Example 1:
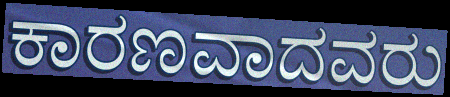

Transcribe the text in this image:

ಕಾರಣವಾದವರು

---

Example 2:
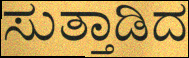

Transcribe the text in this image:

ಸುತ್ತಾಡಿದ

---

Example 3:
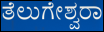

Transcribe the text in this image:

ತೆಲುಗೇಶ್ವರಾ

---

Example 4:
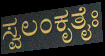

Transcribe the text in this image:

ಸ್ವಲಂಕೃತೈಃ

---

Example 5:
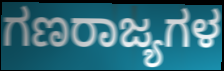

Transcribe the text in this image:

ಗಣರಾಜ್ಯಗಳ